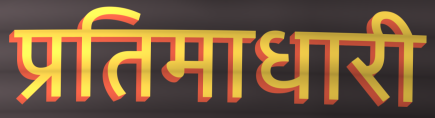
प्रतिमाधारी